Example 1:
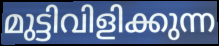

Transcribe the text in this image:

മുട്ടിവിളിക്കുന്ന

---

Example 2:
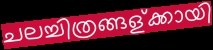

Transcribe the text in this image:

ചലച്ചിത്രങ്ങള്ക്കായി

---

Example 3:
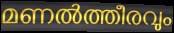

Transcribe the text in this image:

മണൽത്തീരവും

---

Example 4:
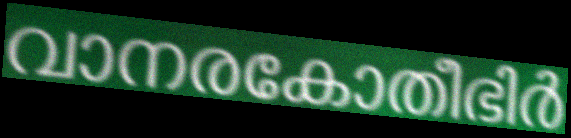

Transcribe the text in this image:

വാനരകോതീഭിർ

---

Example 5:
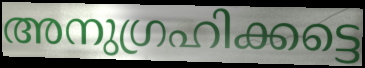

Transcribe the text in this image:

അനുഗ്രഹിക്കട്ടെ